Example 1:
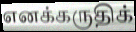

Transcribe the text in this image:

எனக்கருதிக்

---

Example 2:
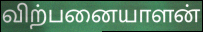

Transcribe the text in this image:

விற்பனையாளன்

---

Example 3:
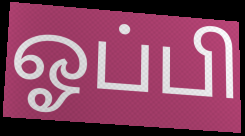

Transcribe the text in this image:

ஓப்பி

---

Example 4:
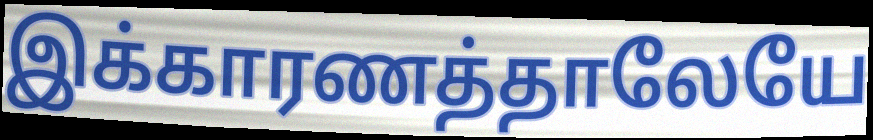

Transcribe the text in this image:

இக்காரணத்தாலேயே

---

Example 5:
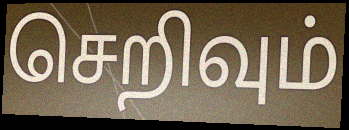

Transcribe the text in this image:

செறிவும்